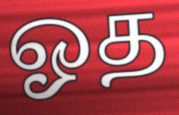
ஓத